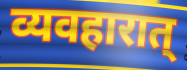
व्यवहारात्